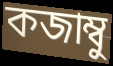
কজাম্বু